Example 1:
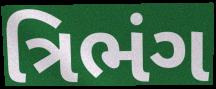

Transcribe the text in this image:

ત્રિભંગ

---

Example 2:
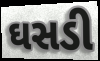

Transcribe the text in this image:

ઘસડી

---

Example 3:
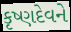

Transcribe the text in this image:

કૃષ્ણદેવને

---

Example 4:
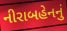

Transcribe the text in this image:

નીરાબહેનનું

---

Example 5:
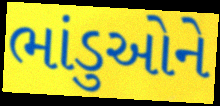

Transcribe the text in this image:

ભાંડુઓને